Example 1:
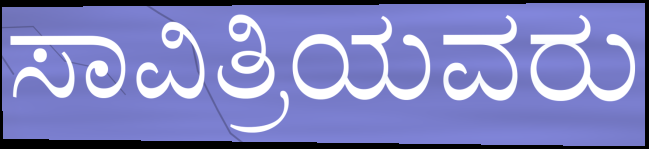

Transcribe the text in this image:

ಸಾವಿತ್ರಿಯವರು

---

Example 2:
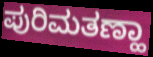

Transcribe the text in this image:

ಪುರಿಮತಣ್ಹಾ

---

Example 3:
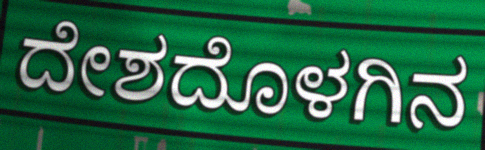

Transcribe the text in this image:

ದೇಶದೊಳಗಿನ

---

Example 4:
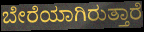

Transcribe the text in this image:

ಬೇರೆಯಾಗಿರುತ್ತಾರೆ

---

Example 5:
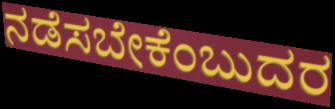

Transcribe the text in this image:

ನಡೆಸಬೇಕೆಂಬುದರ